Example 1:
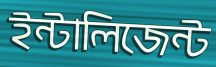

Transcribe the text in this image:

ইন্টালিজেন্ট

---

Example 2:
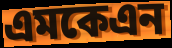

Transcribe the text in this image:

এমকেএন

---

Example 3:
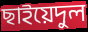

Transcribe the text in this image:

ছাইয়েদুল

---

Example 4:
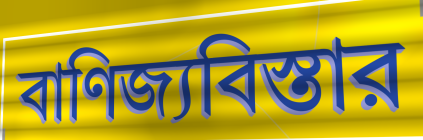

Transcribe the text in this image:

বাণিজ্যবিস্তার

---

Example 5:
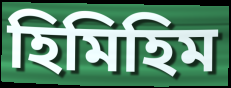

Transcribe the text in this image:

হিমিহিম